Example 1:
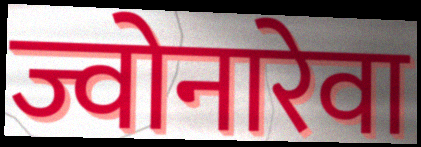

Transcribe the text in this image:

ज्वोनारेवा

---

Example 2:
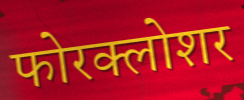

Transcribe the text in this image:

फोरक्लोशर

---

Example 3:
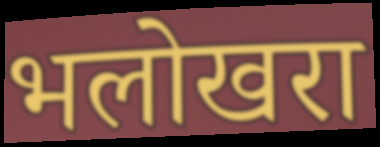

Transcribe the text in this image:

भलोखरा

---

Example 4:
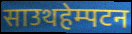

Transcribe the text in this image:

साउथहेम्पटन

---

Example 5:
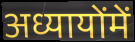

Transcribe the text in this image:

अध्यायोंमें